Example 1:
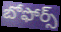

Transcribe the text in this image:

బోఫోర్స్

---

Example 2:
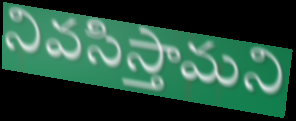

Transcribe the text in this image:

నివసిస్తామని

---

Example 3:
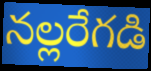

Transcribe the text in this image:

నల్లరేగడి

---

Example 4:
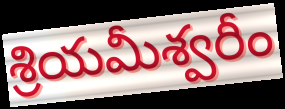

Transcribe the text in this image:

శ్రియమీశ్వరీం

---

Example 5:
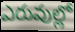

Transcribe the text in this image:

ఎరువుల్లో